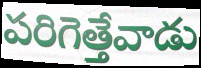
పరిగెత్తేవాడు